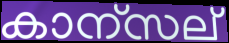
കാന്സല്